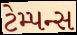
ટેમ્પન્સ